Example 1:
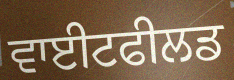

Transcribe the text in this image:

ਵਾਈਟਫੀਲਡ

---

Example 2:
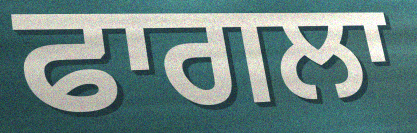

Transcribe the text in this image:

ਫਾਗਲਾ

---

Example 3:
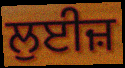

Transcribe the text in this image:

ਲੁਈਜ਼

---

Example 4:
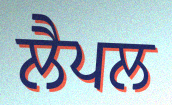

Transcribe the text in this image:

ਲੈਪਲ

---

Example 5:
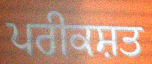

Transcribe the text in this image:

ਪਰੀਕਸ਼ਤ